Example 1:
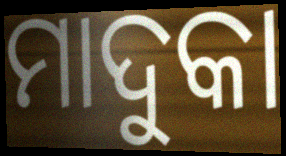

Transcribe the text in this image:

ମାଦୁକା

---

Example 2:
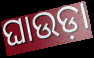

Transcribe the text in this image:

ଘାଉଡ଼ା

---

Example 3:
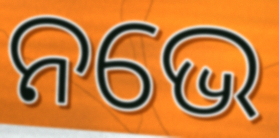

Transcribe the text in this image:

ନଭେ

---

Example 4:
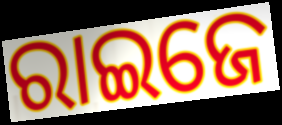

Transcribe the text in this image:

ରାଇଜେ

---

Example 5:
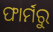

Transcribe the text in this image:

ଫାର୍ମରୁ